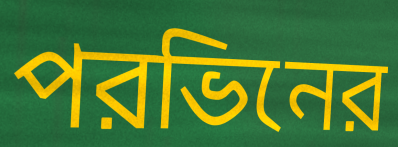
পরভিনের